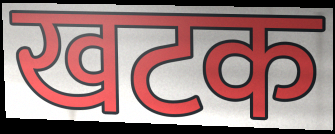
खटक